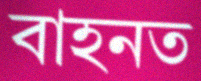
বাহনত